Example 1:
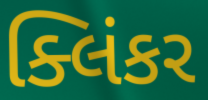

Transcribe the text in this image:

ક્લિંકર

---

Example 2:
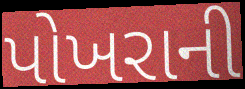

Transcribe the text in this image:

પોખરાની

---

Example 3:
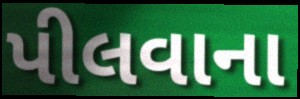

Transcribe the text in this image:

પીલવાના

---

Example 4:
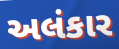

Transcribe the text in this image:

અલંકાર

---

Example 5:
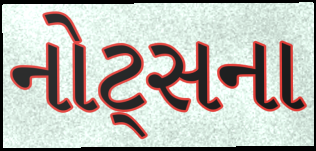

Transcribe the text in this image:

નોટ્સના